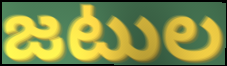
జటుల